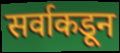
सर्वाकडून